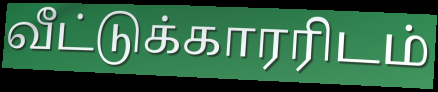
வீட்டுக்காரரிடம்